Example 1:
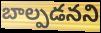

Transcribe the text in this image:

బాల్పడనని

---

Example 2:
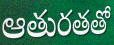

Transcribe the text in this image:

ఆతురతతో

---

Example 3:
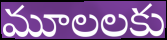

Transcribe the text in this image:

మూలలకు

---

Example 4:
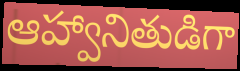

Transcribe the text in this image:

ఆహ్వానితుడిగా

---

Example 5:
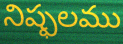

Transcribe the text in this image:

నిష్ఫలము